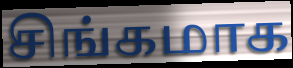
சிங்கமாக